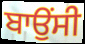
ਬਾਉਂਸੀ